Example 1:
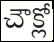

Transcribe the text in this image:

చౌక్లో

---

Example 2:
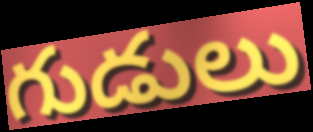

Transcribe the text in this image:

గుడులు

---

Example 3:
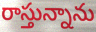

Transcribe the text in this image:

రాస్తున్నాను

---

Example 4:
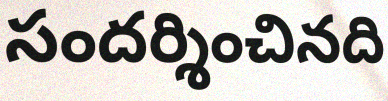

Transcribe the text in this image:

సందర్శించినది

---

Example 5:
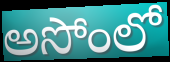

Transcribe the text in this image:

అసోంలో